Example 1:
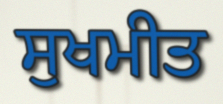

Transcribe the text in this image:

ਸੁਖਮੀਤ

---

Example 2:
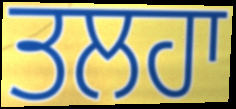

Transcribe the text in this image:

ਤਲਹਾ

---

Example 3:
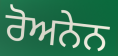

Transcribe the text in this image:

ਰੋਅਨੇਨ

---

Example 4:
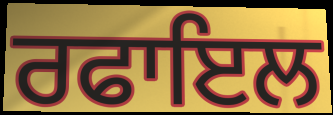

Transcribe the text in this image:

ਰਫਾਇਲ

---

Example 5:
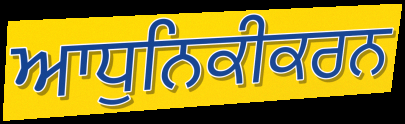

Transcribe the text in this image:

ਆਧੁਨਿਕੀਕਰਨ